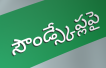
సౌండ్స్కేప్లపై